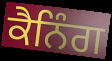
ਕੈਨਿੰਗ